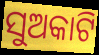
ସୁଅକାଟି